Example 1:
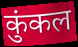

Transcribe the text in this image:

कुंकल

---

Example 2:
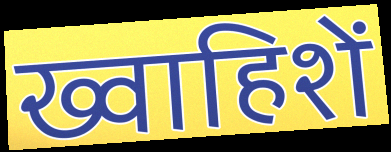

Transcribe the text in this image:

ख्वाहिशें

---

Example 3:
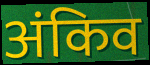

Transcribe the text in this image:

अंकिव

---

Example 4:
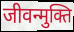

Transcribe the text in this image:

जीवन्मुक्ति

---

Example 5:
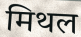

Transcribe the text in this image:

मिथल